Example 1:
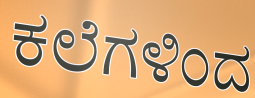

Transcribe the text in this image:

ಕಲೆಗಳಿಂದ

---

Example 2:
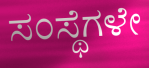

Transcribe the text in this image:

ಸಂಸ್ಥೆಗಳೇ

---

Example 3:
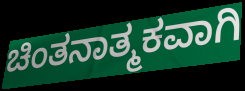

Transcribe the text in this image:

ಚಿಂತನಾತ್ಮಕವಾಗಿ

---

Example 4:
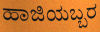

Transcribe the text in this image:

ಹಾಜಿಯಬ್ಬರ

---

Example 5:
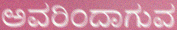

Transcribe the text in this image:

ಅವರಿಂದಾಗುವ